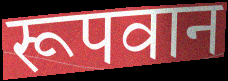
रूपवान